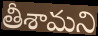
తీశామని